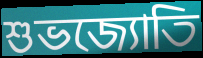
শুভজ্যোতি